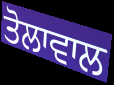
ਤੋਲਾਵਾਲ